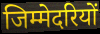
जिम्मेदरियों